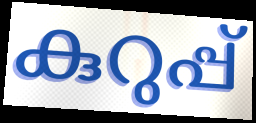
കുറുപ്പ്